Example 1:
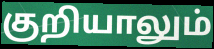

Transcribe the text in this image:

குறியாலும்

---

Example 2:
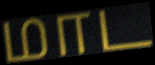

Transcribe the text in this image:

மாட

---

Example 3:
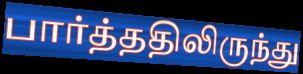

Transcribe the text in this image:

பார்த்ததிலிருந்து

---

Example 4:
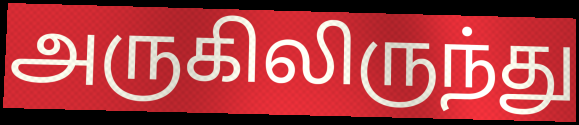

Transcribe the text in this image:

அருகிலிருந்து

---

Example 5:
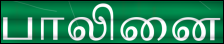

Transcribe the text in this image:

பாலினை